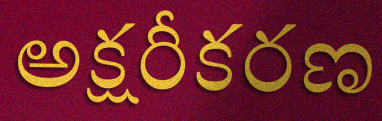
అక్షరీకరణ